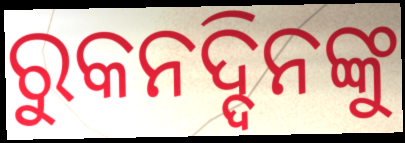
ରୁକନଦ୍ଦିନଙ୍କୁ